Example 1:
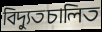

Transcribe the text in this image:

বিদ্যুতচালিত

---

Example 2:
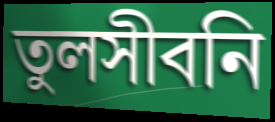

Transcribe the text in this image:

তুলসীবনি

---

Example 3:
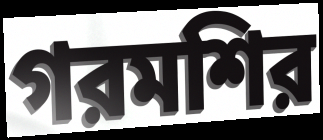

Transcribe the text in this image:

গরমশির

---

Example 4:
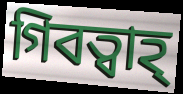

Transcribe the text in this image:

গিবত্বাহ্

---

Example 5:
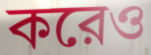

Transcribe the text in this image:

করেও